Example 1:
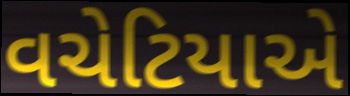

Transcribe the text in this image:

વચેટિયાએ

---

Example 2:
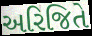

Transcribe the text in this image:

અરિજિતે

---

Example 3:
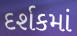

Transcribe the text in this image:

દર્શકમાં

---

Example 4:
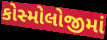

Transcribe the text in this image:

કોસ્મોલોજીમાં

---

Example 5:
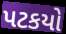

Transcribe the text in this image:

પટકયો